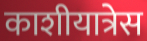
काशीयात्रेस